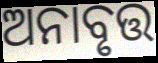
ଅନାବୃତ୍ତ